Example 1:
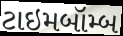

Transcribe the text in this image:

ટાઇમબૉમ્બ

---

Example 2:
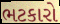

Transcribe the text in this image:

ભટકારો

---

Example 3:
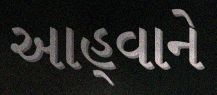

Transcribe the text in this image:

આહ્‌વાને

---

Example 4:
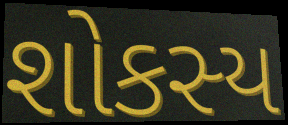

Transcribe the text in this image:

શોકસ્ય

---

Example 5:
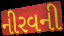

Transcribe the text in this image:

નીરવની